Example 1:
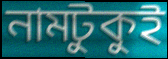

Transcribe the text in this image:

নামটুকুই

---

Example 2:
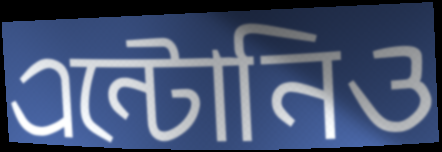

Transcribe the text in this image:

এন্টোনিও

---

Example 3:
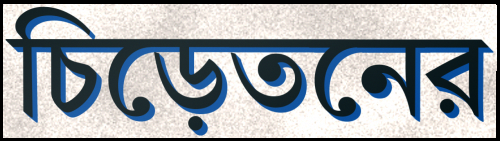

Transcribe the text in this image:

চিড়েতনের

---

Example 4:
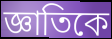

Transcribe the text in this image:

জ্ঞাতিকে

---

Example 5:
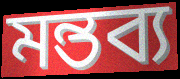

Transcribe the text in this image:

মন্তব্য